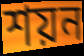
শয়ন